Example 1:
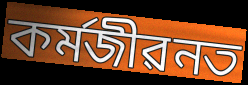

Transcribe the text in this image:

কৰ্মজীৱনত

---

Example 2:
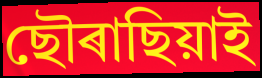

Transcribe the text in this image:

ছৌৰাছিয়াই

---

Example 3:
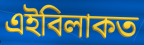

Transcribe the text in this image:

এইবিলাকত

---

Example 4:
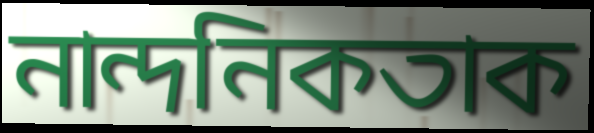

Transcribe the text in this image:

নান্দনিকতাক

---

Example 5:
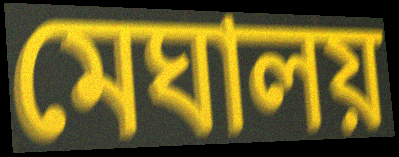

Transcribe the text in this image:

মেঘালয়